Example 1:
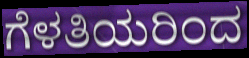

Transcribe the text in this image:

ಗೆಳತಿಯರಿಂದ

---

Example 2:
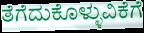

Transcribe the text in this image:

ತೆಗೆದುಕೊಳ್ಳುವಿಕೆಗೆ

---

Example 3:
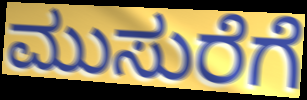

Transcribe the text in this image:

ಮುಸುರೆಗೆ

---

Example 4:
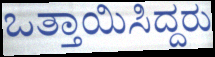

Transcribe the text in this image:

ಒತ್ತಾಯಿಸಿದ್ದರು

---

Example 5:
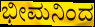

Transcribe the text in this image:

ಭೀಮನಿಂದ